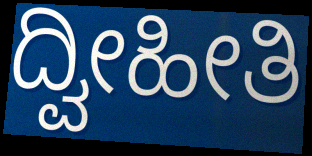
ದ್ವೀಹೀತಿ